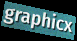
graphicx